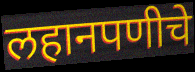
लहानपणीचे